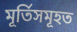
মূৰ্তিসমূহত